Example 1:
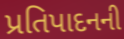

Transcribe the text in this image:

પ્રતિપાદનની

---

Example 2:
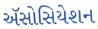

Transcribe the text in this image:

ઍસોસિયેશન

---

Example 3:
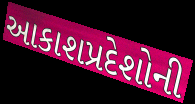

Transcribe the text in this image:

આકાશપ્રદેશોની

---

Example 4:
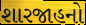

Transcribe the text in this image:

શારજાહનો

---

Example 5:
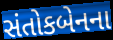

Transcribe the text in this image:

સંતોકબેનના